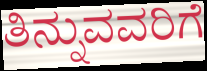
ತಿನ್ನುವವರಿಗೆ